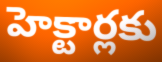
హెక్టార్లకు